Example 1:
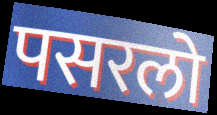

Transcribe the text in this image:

पसरलो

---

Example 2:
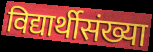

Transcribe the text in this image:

विद्यार्थीसंख्या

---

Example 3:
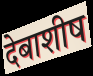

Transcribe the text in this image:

देबाशीष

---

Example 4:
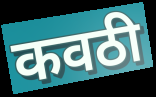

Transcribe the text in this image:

कवठी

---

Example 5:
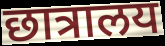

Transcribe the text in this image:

छात्रालय